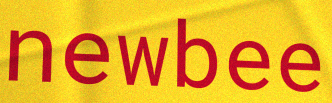
newbee